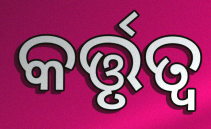
କର୍ତ୍ତୃତ୍ୱ